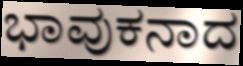
ಭಾವುಕನಾದ